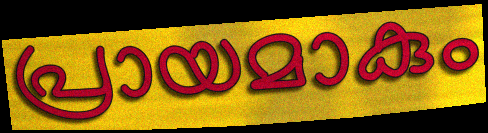
പ്രായമാകും